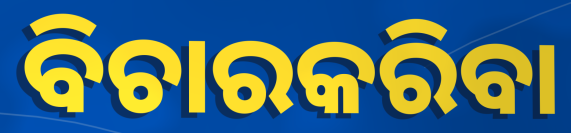
ବିଚାରକରିବା